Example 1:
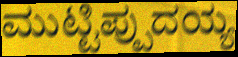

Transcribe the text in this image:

ಮುಟ್ಟಿಪ್ಪುದಯ್ಯ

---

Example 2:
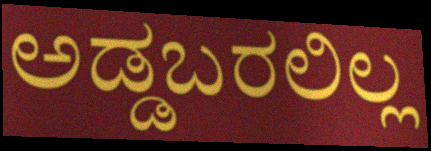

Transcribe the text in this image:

ಅಡ್ಡಬರಲಿಲ್ಲ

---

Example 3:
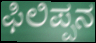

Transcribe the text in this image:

ಫಿಲಿಪ್ಪನ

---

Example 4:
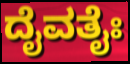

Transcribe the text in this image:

ದೈವತೈಃ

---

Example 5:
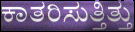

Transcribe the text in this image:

ಕಾತರಿಸುತ್ತಿತ್ತು